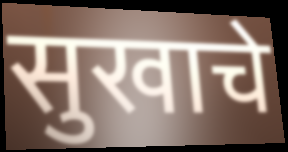
सुखाचे